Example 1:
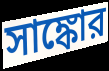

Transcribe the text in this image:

সাঙ্কোর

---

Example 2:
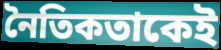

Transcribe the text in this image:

নৈতিকতাকেই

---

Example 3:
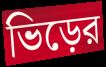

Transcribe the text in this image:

ভিড়ের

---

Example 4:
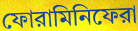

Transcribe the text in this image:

ফোরামিনিফেরা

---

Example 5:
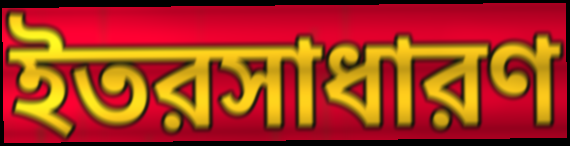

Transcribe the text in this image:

ইতরসাধারণ